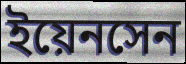
ইয়েনসেন